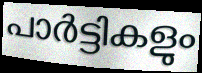
പാർട്ടികളും